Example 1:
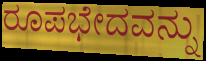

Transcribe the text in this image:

ರೂಪಭೇದವನ್ನು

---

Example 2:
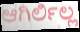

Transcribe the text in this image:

ಆಗಿರ್ಲಿಲ್ಲ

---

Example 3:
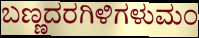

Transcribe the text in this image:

ಬಣ್ಣದರಗಿಳಿಗಳುಮಂ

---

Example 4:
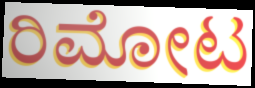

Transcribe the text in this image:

ರಿಮೋಟ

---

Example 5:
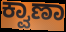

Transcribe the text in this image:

ಕ್ವಾಣಾ